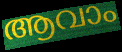
ആവാം